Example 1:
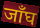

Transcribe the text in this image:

जाँघ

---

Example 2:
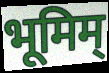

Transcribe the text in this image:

भूमिम्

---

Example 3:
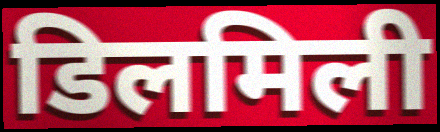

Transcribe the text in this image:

डिलमिली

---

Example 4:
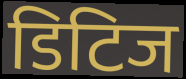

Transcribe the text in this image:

डिटिज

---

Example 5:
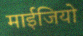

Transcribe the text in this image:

माईजियो